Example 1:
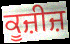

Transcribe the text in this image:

ਕੂਜ਼ੀਜ਼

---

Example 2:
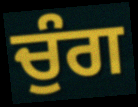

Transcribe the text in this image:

ਚੁੰਗ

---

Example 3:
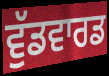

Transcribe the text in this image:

ਵੁੱਡਵਾਰਡ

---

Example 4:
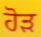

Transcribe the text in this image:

ਹੋੜ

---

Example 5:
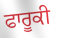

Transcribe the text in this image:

ਫਾਰੂਕੀ